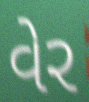
વેર